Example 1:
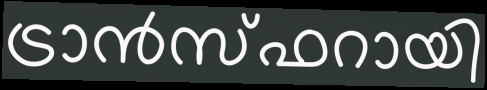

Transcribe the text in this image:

ട്രാൻസ്ഫറായി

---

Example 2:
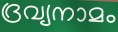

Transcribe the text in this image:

ദ്രവ്യനാമം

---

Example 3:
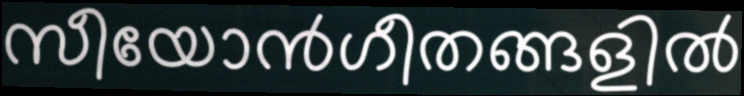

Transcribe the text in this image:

സീയോൻഗീതങ്ങളിൽ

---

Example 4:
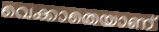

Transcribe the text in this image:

വെക്കാതെയാണ്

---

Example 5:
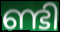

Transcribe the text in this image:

ണ്ടി